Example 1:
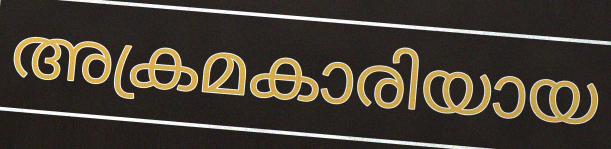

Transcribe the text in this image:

അക്രമകാരിയായ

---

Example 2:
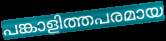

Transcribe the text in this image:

പങ്കാളിത്തപരമായ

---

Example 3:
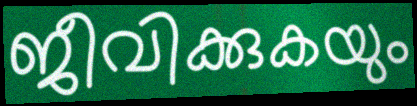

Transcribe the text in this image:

ജീവിക്കുകയും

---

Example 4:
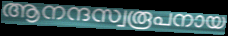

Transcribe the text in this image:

ആനന്ദസ്വരൂപനായ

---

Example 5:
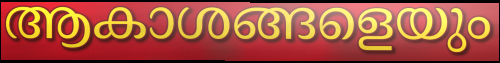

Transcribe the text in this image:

ആകാശങ്ങളെയും